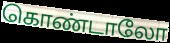
கொண்டாலோ